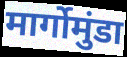
मार्गोमुंडा